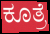
ಕೂತ್ರೆ